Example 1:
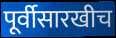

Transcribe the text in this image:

पूर्वीसारखीच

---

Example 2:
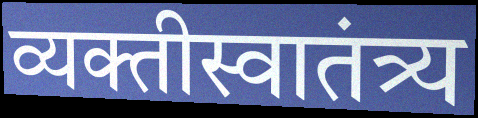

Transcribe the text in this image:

व्यक्तीस्वातंत्र्य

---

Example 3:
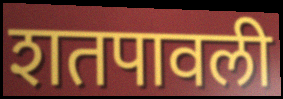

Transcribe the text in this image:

शतपावली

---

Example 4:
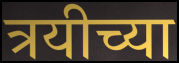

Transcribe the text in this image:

त्रयीच्या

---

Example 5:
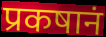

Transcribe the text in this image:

प्रकषानं